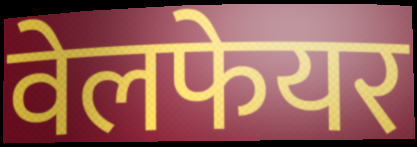
वेलफेयर